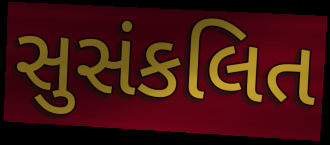
સુસંકલિત